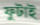
ফুটাই